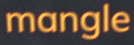
mangle